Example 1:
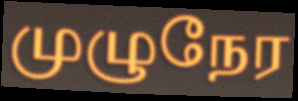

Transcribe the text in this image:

முழுநேர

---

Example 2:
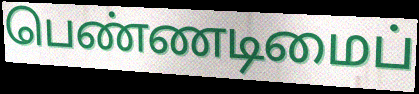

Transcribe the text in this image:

பெண்ணடிமைப்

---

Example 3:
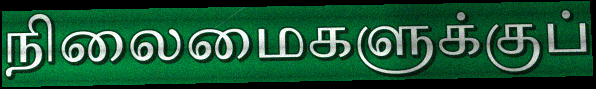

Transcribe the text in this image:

நிலைமைகளுக்குப்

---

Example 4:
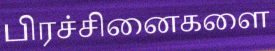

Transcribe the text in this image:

பிரச்சினைகளை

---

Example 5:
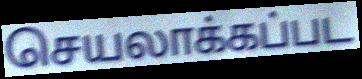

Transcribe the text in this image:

செயலாக்கப்பட